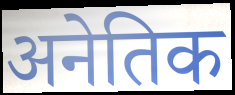
अनेतिक